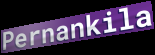
Pernankila